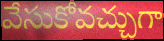
వేసుకోవచ్చుగా